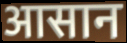
आसान